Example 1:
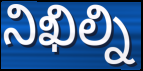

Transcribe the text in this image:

నిఖిల్ని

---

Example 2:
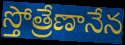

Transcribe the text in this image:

స్తోత్రేణానేన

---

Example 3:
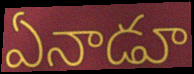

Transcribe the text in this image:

ఏనాడూ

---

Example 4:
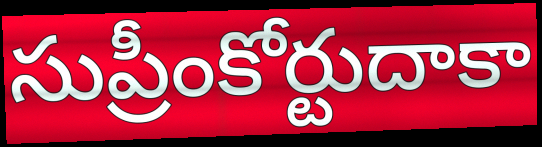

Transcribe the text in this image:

సుప్రీంకోర్టుదాకా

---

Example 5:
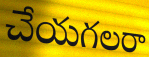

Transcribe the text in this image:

చేయగలరా